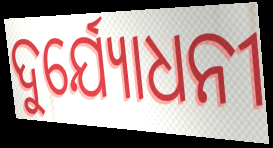
ଦୁର୍ଯ୍ୟୋଧନୀ